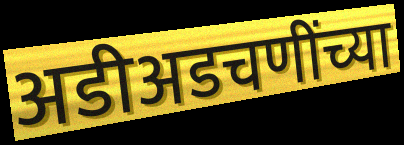
अडीअडचणींच्या